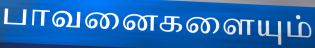
பாவனைகளையும்